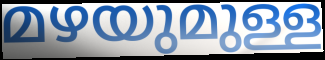
മഴയുമുള്ള